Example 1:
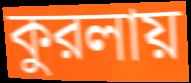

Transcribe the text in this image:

কুরলায়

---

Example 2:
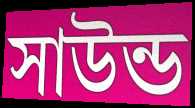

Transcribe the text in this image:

সাউন্ড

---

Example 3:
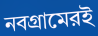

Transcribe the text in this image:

নবগ্রামেরই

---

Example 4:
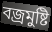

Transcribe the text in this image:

বজ্রমুষ্টি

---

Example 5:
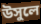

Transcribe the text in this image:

উসুলে